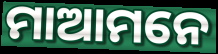
ମାଆମନେ